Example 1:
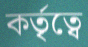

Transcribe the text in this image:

কর্তৃত্বে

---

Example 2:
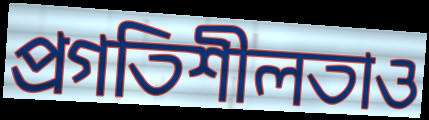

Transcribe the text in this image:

প্রগতিশীলতাও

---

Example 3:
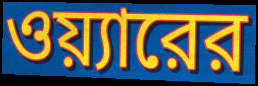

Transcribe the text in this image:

ওয়্যারের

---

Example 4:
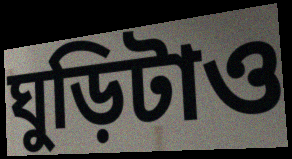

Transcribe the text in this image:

ঘুড়িটাও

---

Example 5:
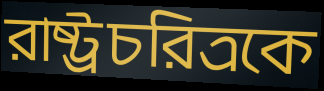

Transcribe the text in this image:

রাষ্ট্রচরিত্রকে